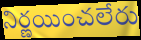
నిర్ణయించలేరు